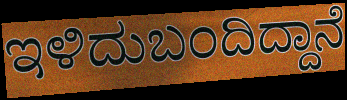
ಇಳಿದುಬಂದಿದ್ದಾನೆ